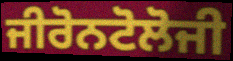
ਜੀਰੋਨਟੋਲੋਜੀ